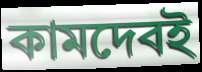
কামদেবই